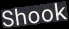
Shook